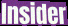
Insider